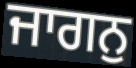
ਜਾਗਨੁ